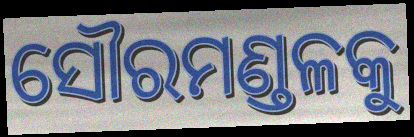
ସୌରମଣ୍ଡଳକୁ